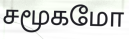
சமூகமோ